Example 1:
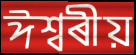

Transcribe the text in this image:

ঈশ্বৰীয়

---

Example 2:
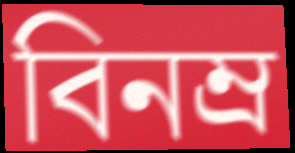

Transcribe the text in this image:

বিনম্ৰ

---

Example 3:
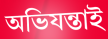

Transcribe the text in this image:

অভিযন্তাই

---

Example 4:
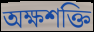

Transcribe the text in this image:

অক্ষশক্তি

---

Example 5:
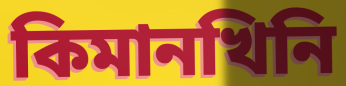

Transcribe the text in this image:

কিমানখিনি